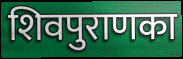
शिवपुराणका